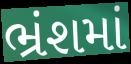
ભ્રંશમાં